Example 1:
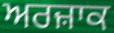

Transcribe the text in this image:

ਅਰਜ਼ਾਕ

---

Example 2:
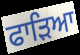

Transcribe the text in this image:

ਫਾੜਿਆ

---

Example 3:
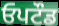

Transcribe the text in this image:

ਓਪਟੌਡ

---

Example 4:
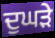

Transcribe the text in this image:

ਦੁਘੜੇ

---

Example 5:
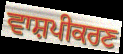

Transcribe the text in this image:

ਵਾਸ਼ਪੀਕਰਣ